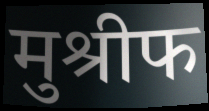
मुश्रीफ